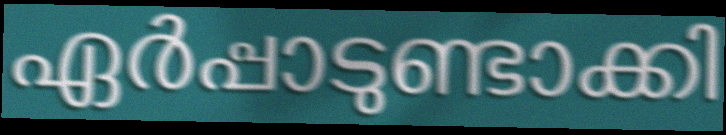
ഏർപ്പാടുണ്ടാക്കി